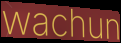
wachun